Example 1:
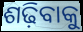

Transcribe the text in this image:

ଶଢ଼ିବାକୁ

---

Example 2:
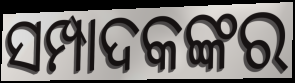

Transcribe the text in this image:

ସମ୍ପାଦକଙ୍କର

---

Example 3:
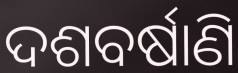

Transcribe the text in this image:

ଦଶବର୍ଷାଣି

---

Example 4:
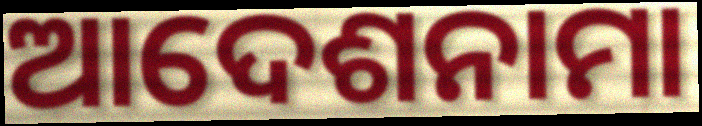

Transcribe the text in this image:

ଆଦେଶନାମା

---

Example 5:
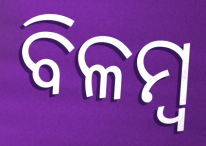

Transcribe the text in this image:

ବିଳମ୍ଵ